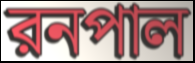
রনপাল